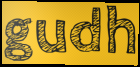
gudh